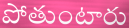
పోతుంటారు